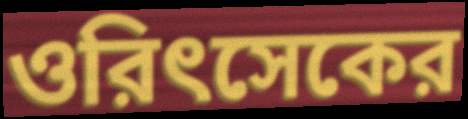
ওরিৎসেকের